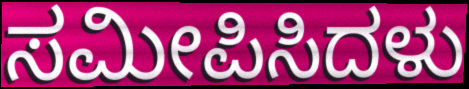
ಸಮೀಪಿಸಿದಳು